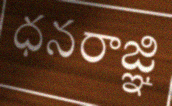
ధనరాజ్ఞి